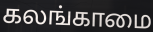
கலங்காமை